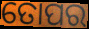
ତୋପର